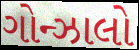
ગોન્ઝાલો